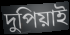
দুপিয়াই